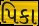
પિકા